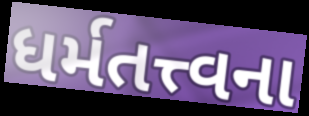
ધર્મતત્ત્વના